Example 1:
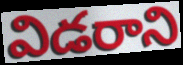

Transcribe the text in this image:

విడరాని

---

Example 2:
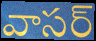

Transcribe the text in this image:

వాసర్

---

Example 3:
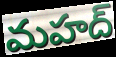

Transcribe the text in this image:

మహద్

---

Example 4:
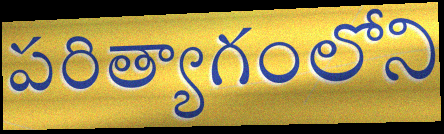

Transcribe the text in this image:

పరిత్యాగంలోని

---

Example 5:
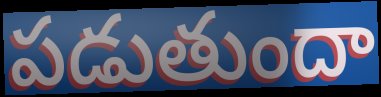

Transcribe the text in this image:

పడుతుందా